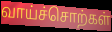
வாய்ச்சொற்கள்